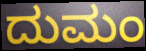
ದುಮಂ